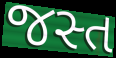
જસ્ત